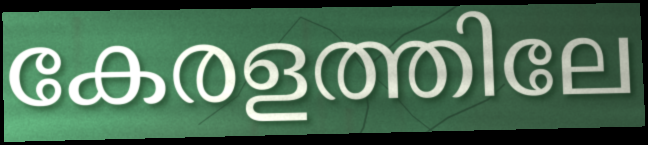
കേരളത്തിലേ